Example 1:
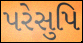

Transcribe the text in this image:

પરેસુપિ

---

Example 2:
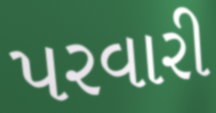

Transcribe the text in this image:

પરવારી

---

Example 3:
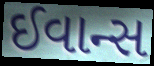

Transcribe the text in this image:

ઈવાન્સ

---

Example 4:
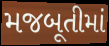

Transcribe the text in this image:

મજબૂતીમાં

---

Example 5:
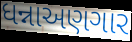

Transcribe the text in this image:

ધન્નાઅણગાર